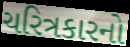
ચરિત્રકારનો